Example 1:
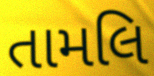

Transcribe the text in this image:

તામલિ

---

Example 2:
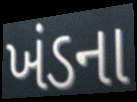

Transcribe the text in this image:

ખંડના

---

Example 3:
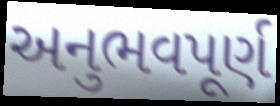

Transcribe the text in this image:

અનુભવપૂર્ણ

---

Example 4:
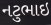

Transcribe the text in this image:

નટુભાઇ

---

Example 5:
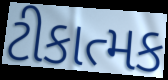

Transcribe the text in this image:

ટીકાત્મક